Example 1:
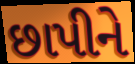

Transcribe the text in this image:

છાપીને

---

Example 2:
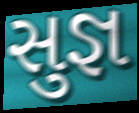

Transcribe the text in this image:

સુજ્ઞ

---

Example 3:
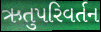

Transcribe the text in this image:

ઋતુપરિવર્તન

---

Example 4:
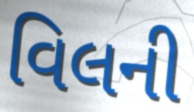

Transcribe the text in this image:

વિલની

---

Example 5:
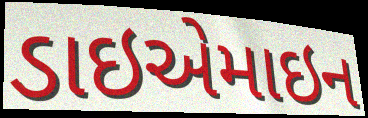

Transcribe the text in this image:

ડાઇએમાઇન